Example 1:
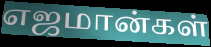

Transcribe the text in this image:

எஜமான்கள்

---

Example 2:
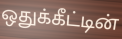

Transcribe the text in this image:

ஒதுக்கீட்டின்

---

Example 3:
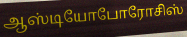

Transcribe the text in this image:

ஆஸ்டியோபோரோசிஸ்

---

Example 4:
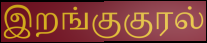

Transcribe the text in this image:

இறங்குகுரல்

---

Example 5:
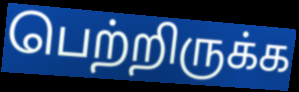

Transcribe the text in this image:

பெற்றிருக்க